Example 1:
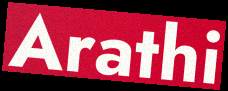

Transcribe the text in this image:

Arathi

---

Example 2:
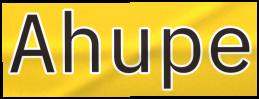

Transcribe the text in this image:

Ahupe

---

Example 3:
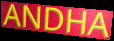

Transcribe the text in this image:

ANDHA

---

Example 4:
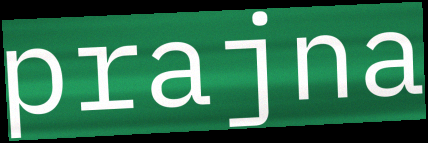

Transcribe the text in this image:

prajna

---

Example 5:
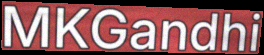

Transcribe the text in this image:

MKGandhi